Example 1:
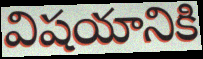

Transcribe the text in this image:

విషయానికి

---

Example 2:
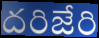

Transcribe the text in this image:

దరిజేరి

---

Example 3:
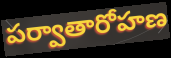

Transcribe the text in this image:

పర్వాతారోహణ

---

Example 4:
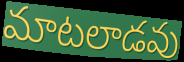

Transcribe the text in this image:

మాటలాడవు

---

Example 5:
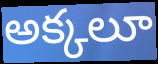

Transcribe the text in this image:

అక్కలూ